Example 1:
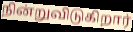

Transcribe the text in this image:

நின்றுவிடுகிறார்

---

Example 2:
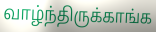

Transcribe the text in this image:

வாழ்ந்திருக்காங்க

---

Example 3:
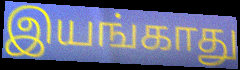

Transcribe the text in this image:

இயங்காது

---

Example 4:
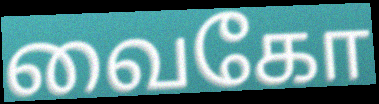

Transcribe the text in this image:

வைகோ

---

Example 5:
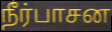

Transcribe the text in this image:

நீர்பாசன